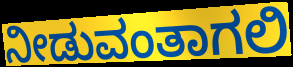
ನೀಡುವಂತಾಗಲಿ